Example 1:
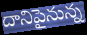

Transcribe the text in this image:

దానిపైనున్న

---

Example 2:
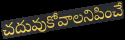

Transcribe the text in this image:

చదువుకోవాలనిపించే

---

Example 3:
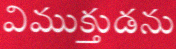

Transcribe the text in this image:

విముక్తుడను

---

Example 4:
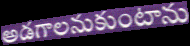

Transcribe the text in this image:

అడగాలనుకుంటాను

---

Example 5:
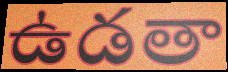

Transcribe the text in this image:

ఉడతా